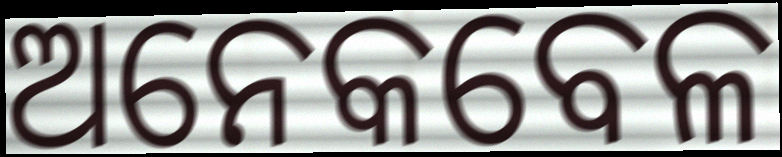
ଅନେକବେଳ